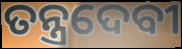
ତନ୍ତ୍ରଦେବୀ